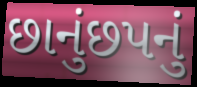
છાનુંછપનું